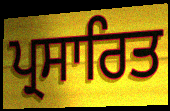
ਪ੍ਰਸਾਰਿਤ